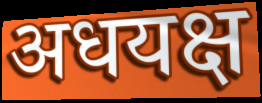
अधयक्ष